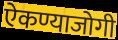
ऐकण्याजोगी